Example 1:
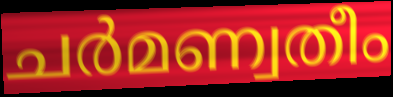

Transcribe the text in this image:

ചർമണ്വതീം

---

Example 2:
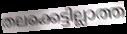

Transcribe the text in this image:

തലക്കെട്ടില്ലാത്ത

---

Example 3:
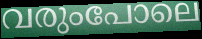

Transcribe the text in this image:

വരുംപോലെ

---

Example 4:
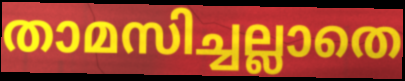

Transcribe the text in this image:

താമസിച്ചല്ലാതെ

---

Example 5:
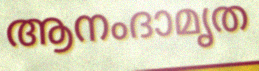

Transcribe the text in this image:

ആനംദാമൃത